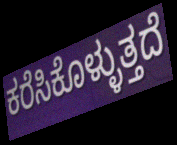
ಕರೆಸಿಕೊಳ್ಳುತ್ತದೆ